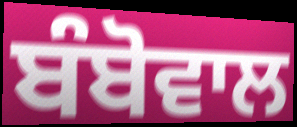
ਬੰਬੋਵਾਲ